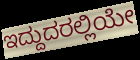
ಇದ್ದುದರಲ್ಲಿಯೇ